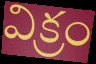
విక్రం